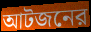
আটজনের